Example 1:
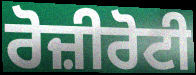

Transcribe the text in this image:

ਰੋਜ਼ੀਰੋਟੀ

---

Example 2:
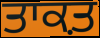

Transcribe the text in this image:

ਤਾਕ਼ਤ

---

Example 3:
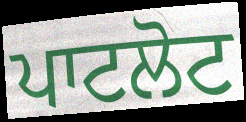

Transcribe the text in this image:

ਪਾਟਲੋਟ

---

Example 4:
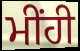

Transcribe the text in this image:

ਮੀਂਹੀ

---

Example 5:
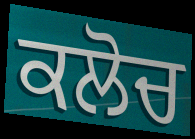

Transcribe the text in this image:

ਕਲੋਚ